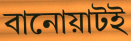
বানোয়াটই